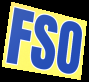
FSO